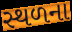
સ્થળના